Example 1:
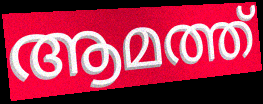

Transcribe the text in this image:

ആമത്ത്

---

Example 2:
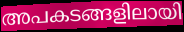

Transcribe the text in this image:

അപകടങ്ങളിലായി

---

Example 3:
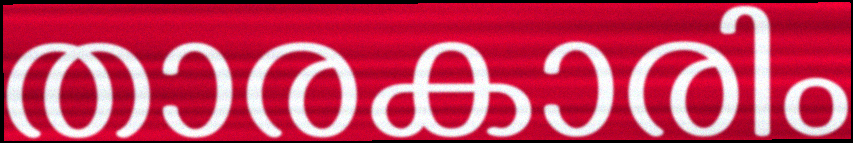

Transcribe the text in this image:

താരകാരിം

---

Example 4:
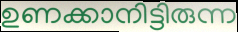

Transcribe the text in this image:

ഉണക്കാനിട്ടിരുന്ന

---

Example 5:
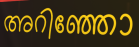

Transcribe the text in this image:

അറിഞ്ഞോ